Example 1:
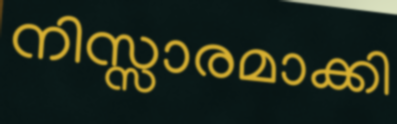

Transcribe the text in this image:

നിസ്സാരമാക്കി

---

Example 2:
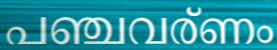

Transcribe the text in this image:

പഞ്ചവര്ണം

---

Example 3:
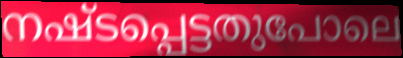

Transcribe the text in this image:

നഷ്ടപ്പെട്ടതുപോലെ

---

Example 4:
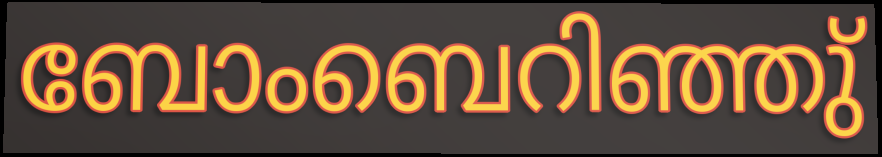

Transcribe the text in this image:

ബോംബെറിഞ്ഞു്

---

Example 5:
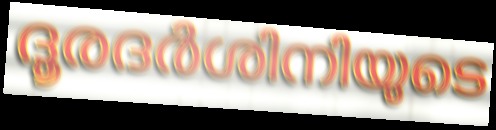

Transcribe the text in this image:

ദൂരദർശിനിയുടെ